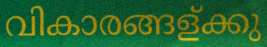
വികാരങ്ങള്ക്കു